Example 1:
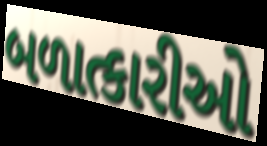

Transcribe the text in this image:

બળાત્કારીઓ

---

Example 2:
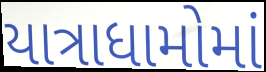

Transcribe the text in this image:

યાત્રાધામોમાં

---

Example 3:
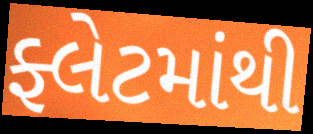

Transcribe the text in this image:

ફ્લેટમાંથી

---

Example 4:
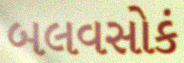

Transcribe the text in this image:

બલવસોકં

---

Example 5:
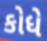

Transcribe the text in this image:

કોધે